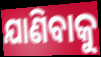
ଯାଣିବାକୁ